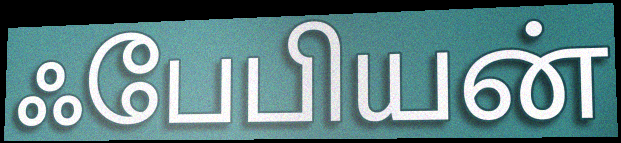
ஃபேபியன்